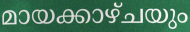
മായക്കാഴ്ചയും